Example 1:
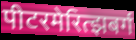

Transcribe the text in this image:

पीटरमेरित्झबर्ग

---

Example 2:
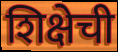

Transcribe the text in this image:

शिक्षेची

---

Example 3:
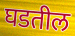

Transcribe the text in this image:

घडतील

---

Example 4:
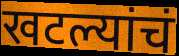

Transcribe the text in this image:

खटल्यांचं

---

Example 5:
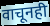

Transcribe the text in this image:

वाचूनही